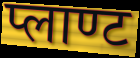
प्लाण्ट